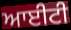
ਆਈਟੀ